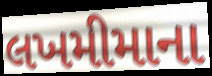
લખમીમાના